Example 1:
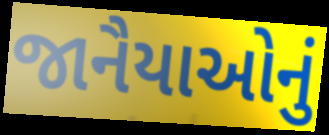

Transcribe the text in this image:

જાનૈયાઓનું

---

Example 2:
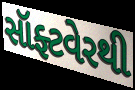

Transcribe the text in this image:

સૉફ્ટવેરથી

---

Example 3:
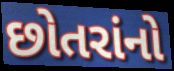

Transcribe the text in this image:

છોતરાંનો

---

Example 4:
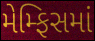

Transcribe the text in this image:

મેમ્ફિસમાં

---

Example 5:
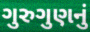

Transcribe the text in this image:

ગુરુગુણનું